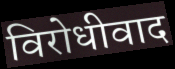
विरोधीवाद